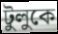
টুলুকে